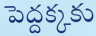
పెద్దక్కకు